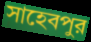
সাহেবপুর